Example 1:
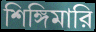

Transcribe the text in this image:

শিঙ্গিমারি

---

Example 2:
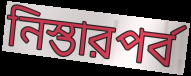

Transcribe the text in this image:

নিস্তারপর্ব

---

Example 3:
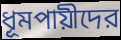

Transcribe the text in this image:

ধূমপায়ীদের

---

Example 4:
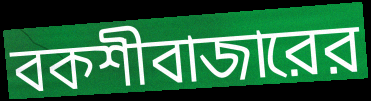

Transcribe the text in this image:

বকশীবাজারের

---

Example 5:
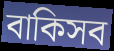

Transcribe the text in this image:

বাকিসব